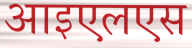
आइएलएस